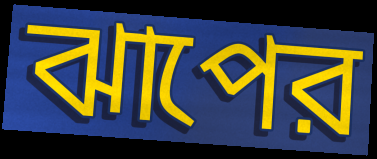
ঝাপের